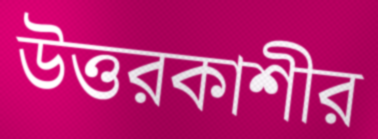
উত্তরকাশীর